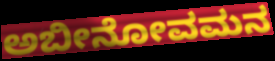
ಅಬೀನೋವಮನ